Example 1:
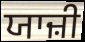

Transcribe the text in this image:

ਯਾਜ਼ੀ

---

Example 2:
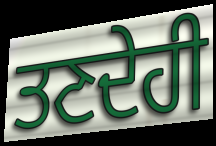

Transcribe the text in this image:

ਤਣਦੇਹੀ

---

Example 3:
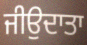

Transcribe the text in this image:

ਜੀਉਦਾਤਾ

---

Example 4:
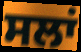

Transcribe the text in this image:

ਸਲਾਂ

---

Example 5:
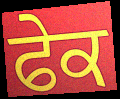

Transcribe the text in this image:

ਫੇਕ